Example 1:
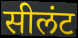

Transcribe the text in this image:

सीलंट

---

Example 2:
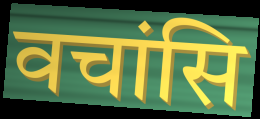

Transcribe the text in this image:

वचांसि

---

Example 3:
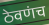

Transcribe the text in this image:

ठेवणंच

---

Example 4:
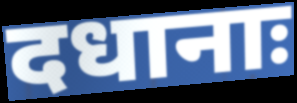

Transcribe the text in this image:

दधानाः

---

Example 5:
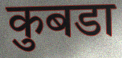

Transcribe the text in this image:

कुबडा